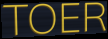
TOER